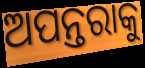
ଅପନ୍ତରାକୁ